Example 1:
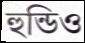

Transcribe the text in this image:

হুন্ডিও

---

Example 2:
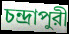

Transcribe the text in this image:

চন্দ্রাপুরী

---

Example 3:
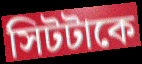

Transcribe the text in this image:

সিটটাকে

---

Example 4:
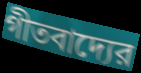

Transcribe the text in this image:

গীতবাদ্যের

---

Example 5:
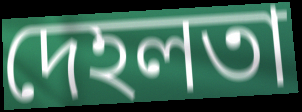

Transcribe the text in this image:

দেহলতা